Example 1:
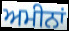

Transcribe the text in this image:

ਅਮੀਨਾਂ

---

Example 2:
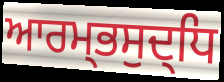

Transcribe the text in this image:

ਆਰਮ੍ਭਸੁਦ੍ਧਿ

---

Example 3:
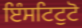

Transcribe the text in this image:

ਇੰਸਟਿਟੁਟੋ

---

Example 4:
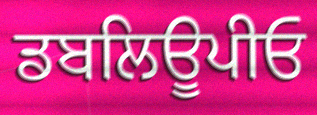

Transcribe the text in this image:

ਡਬਲਿਊਪੀਓ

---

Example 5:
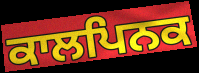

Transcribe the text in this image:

ਕਾਲਪਿਨਕ